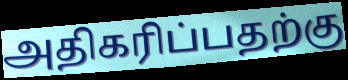
அதிகரிப்பதற்கு